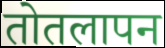
तोतलापन